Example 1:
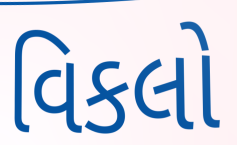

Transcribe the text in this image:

વિકલો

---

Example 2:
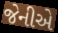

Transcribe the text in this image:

જેનીએ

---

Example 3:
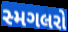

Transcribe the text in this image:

સ્મગલરો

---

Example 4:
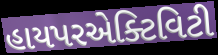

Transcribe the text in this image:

હાયપરએક્ટિવિટી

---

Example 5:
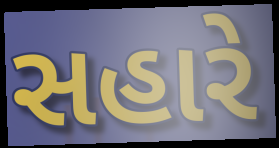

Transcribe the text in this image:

સહારે